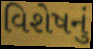
વિશેષનું